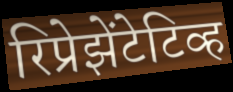
रिप्रेझेंटेटिव्ह